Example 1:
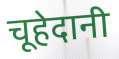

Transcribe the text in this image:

चूहेदानी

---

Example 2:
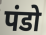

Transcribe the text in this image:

पंडो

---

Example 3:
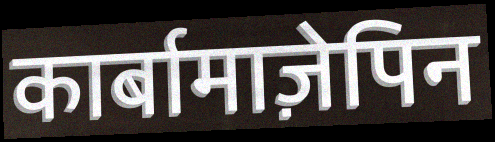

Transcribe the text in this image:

कार्बामाज़ेपिन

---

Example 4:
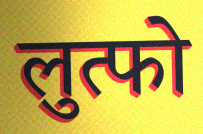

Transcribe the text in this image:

लुत्फो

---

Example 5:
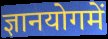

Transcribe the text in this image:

ज्ञानयोगमें